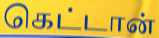
கெட்டான்